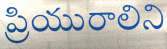
ప్రియురాలిని